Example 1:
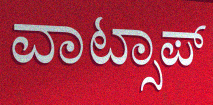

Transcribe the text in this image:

ವಾಟ್ಸಾಪ್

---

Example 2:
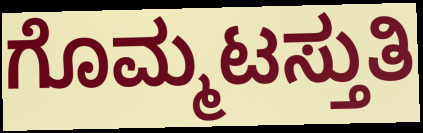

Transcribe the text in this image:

ಗೊಮ್ಮಟಸ್ತುತಿ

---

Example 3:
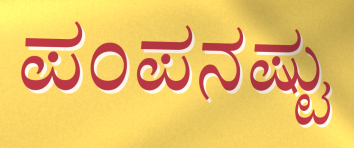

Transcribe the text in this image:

ಪಂಪನಷ್ಟು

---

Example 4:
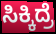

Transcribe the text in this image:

ಸಿಕ್ಕಿದ್ರೆ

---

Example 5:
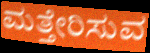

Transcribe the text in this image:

ಮತ್ತೇರಿಸುವ